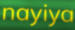
nayiya